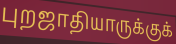
புறஜாதியாருக்குக்